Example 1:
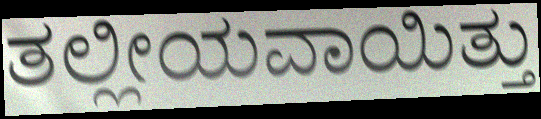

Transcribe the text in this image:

ತಲ್ಲೀಯವಾಯಿತ್ತು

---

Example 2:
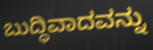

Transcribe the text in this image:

ಬುದ್ಧಿವಾದವನ್ನು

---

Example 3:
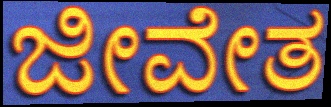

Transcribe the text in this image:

ಜೀವೇತ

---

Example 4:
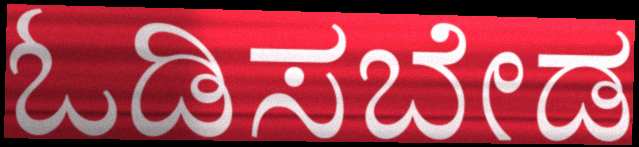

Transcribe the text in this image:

ಓಡಿಸಬೇಡ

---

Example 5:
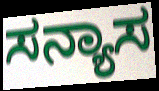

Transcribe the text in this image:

ಸನ್ಯಾಸ